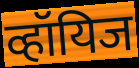
व्हॉयिज